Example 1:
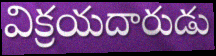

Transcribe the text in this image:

విక్రయదారుడు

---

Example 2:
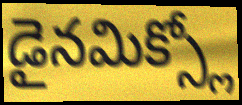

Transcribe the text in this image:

డైనమిక్స్లో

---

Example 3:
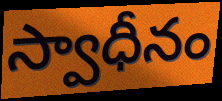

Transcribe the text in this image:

స్వాధీనం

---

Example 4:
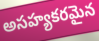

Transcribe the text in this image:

అసహ్యకరమైన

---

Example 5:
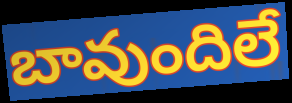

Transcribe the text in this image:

బావుందిలే